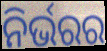
ନିର୍ଭରର